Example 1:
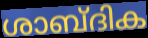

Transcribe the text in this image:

ശാബ്ദിക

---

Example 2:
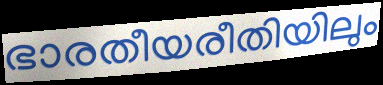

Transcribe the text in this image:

ഭാരതീയരീതിയിലും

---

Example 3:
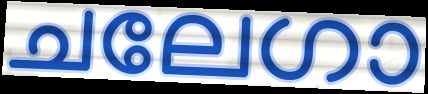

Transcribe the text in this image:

ചലേഗാ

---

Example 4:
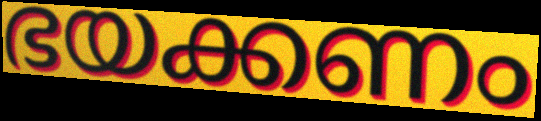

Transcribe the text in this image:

ഭയക്കണം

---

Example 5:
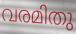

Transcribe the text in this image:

വരമിതു